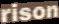
rison